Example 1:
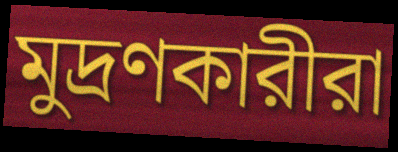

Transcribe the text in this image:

মুদ্রণকারীরা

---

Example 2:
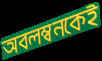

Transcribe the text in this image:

অবলম্বনকেই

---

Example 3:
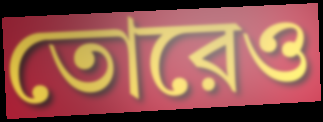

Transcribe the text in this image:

তোরেও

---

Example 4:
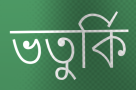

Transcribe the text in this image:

ভতুর্কি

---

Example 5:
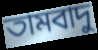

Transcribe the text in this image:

তামবাদু